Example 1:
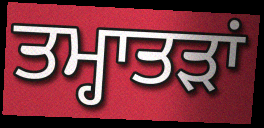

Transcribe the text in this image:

ਤਮ੍ਹਾਤੜਾਂ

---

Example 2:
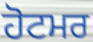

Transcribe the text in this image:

ਹੋਟਮਰ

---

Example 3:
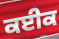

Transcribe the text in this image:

ਕਈਕ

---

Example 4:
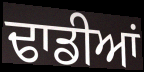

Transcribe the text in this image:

ਢਾਡੀਆਂ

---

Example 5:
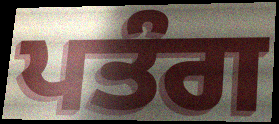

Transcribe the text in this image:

ਪਤੰਗ